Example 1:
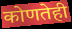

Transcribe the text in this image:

कोणतेही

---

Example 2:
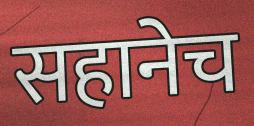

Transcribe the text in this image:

सहानेच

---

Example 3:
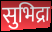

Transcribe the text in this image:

सुभिद्रा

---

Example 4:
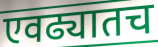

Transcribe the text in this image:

एवढ्यातच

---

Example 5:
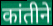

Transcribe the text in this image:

कांतीने